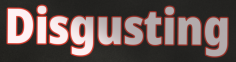
Disgusting